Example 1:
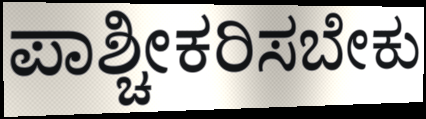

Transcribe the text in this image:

ಪಾಶ್ಚೀಕರಿಸಬೇಕು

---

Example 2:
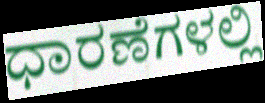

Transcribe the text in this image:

ಧಾರಣೆಗಳಲ್ಲಿ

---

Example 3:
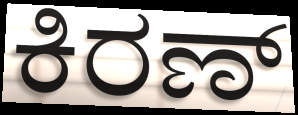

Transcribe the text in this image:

ಕಿರಣ್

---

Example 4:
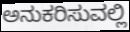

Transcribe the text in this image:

ಅನುಕರಿಸುವಲ್ಲಿ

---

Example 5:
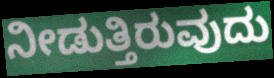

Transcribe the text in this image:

ನೀಡುತ್ತಿರುವುದು